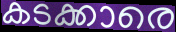
കടക്കാരെ